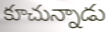
కూచున్నాడు